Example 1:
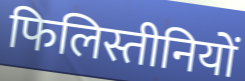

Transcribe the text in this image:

फिलिस्तीनियों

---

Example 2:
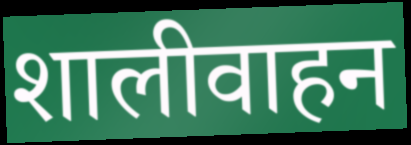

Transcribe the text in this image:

शालीवाहन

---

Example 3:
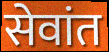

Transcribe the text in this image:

सेवांत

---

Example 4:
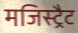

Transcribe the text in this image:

मजिस्ट्रैट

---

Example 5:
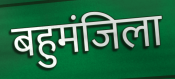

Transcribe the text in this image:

बहुमंजिला